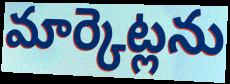
మార్కెట్లను